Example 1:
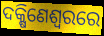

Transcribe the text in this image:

ଦକ୍ଷିଣେଶ୍ୱରରେ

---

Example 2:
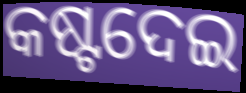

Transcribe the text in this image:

କଷ୍ଟଦେଇ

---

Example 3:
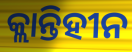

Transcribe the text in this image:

କ୍ଲାନ୍ତିହୀନ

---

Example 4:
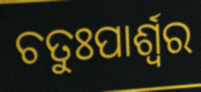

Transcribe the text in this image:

ଚତୁଃପାର୍ଶ୍ଵର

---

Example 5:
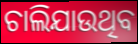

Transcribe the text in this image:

ଚାଲିଯାଉଥିବ